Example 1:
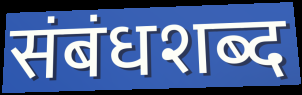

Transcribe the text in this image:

संबंधशब्द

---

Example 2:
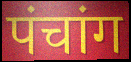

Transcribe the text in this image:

पंचांग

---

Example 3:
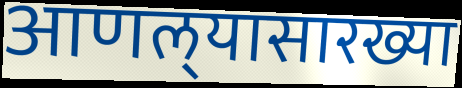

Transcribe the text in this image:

आणल्यासारख्या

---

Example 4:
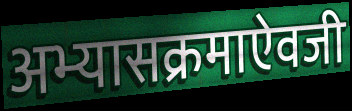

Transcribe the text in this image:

अभ्यासक्रमाऐवजी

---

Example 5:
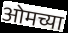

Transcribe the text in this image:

ओमच्या